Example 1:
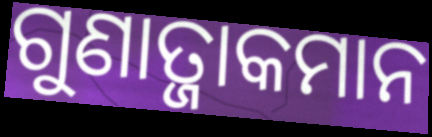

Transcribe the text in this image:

ଗୁଣାତ୍ଜାକମାନ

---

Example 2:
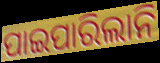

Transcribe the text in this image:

ପାଇପାରିଲାନି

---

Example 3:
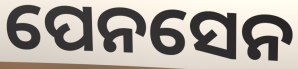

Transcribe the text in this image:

ପେନସେନ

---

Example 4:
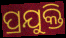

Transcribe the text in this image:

ପ୍ରଯୁକ୍ତି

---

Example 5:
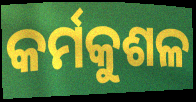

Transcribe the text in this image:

କର୍ମକୁଶଳ